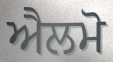
ਐਲਮੋ